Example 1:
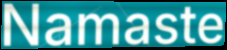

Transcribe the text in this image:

Namaste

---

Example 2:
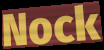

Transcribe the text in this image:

Nock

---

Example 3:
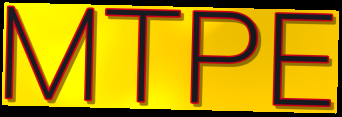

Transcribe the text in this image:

MTPE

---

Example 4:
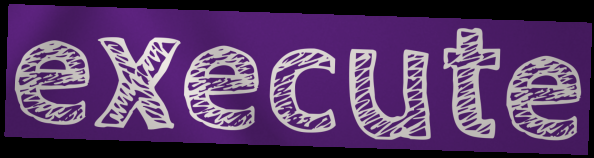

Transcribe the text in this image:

execute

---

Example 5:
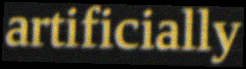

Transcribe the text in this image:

artificially